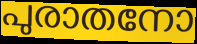
പുരാതനോ